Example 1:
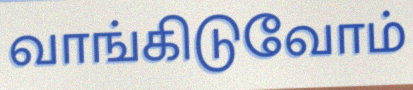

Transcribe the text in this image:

வாங்கிடுவோம்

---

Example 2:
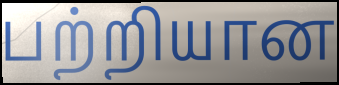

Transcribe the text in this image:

பற்றியான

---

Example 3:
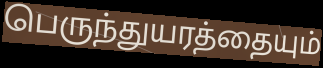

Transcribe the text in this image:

பெருந்துயரத்தையும்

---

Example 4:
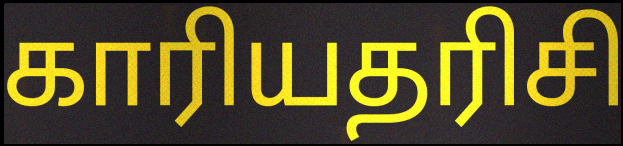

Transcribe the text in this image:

காரியதரிசி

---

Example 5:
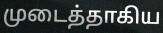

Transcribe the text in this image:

முடைத்தாகிய